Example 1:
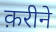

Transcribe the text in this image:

क़रीने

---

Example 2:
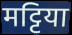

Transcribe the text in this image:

मट्टिया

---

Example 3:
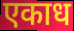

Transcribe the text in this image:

एकाध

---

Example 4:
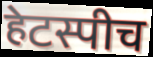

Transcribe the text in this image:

हेटस्पीच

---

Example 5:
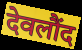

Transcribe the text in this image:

देवलौंद